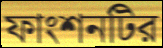
ফাংশনটির